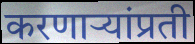
करणाऱ्यांप्रती